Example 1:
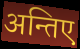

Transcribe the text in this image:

अन्तिए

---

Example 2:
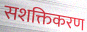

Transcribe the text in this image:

सशक्तिकरण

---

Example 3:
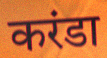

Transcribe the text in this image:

करंडा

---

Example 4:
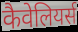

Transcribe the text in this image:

कैवेलियर्स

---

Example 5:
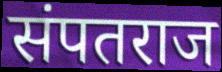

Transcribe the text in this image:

संपतराज